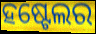
ହଷ୍ଟେଲର